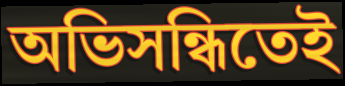
অভিসন্ধিতেই